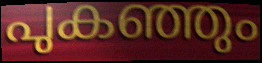
പുകഞ്ഞും